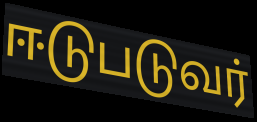
ஈடுபடுவர்